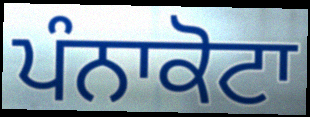
ਪੰਨਾਕੋਟਾ